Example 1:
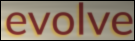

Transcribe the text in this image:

evolve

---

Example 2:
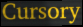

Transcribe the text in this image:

Cursory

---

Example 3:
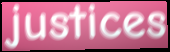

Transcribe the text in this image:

justices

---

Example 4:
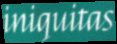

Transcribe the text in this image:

iniquitas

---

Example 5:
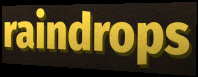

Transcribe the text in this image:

raindrops